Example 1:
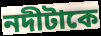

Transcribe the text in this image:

নদীটাকে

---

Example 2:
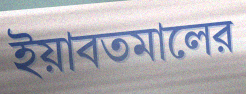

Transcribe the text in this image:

ইয়াবতমালের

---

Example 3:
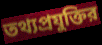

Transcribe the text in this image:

তথ্যপ্রযুক্তির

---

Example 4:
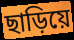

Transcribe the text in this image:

ছাড়িয়ে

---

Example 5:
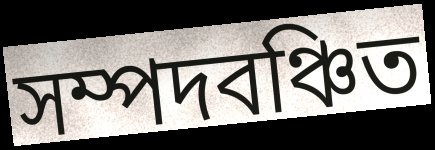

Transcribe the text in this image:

সম্পদবঞ্চিত